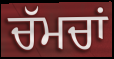
ਚੱਮਚਾਂ